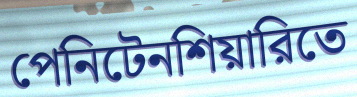
পেনিটেনশিয়ারিতে